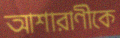
আশারাণীকে